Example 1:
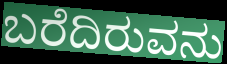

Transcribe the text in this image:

ಬರೆದಿರುವನು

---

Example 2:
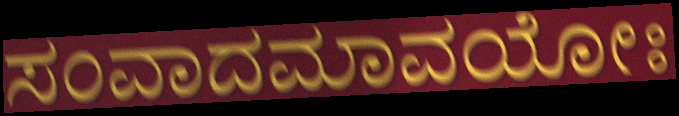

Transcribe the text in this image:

ಸಂವಾದಮಾವಯೋಃ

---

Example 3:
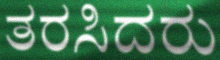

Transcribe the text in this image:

ತರಸಿದರು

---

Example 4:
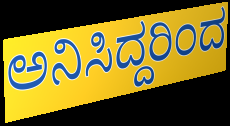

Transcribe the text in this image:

ಅನಿಸಿದ್ದರಿಂದ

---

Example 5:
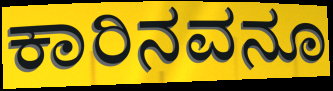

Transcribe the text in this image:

ಕಾರಿನವನೂ